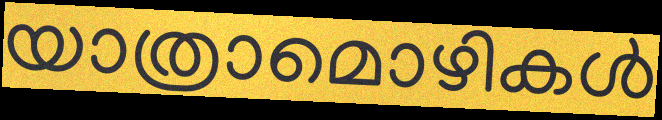
യാത്രാമൊഴികൾ